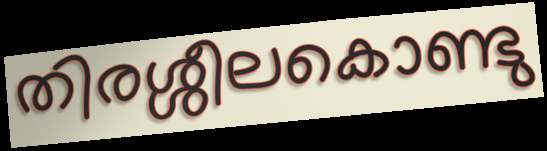
തിരശ്ശീലകൊണ്ടു